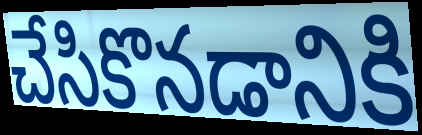
చేసికొనడానికి